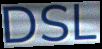
DSL